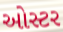
ઓસ્ટર